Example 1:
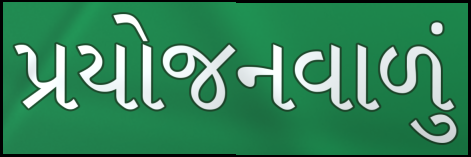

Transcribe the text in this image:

પ્રયોજનવાળું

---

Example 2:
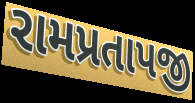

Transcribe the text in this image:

રામપ્રતાપજી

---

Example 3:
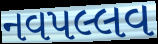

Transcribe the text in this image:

નવપલ્લવ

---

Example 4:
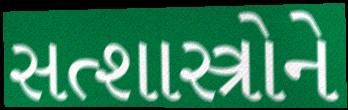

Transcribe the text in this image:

સત્શાસ્ત્રોને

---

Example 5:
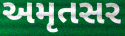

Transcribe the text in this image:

અમૃતસર